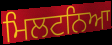
ਮਿਲਟਨਿਆ